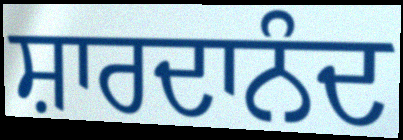
ਸ਼ਾਰਦਾਨੰਦ